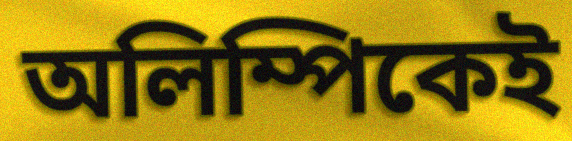
অলিম্পিকেই